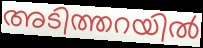
അടിത്തറയിൽ